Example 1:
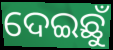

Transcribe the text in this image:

ଦେଇଛୁଁ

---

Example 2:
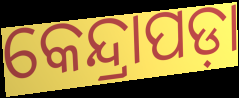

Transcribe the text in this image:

କେନ୍ଦ୍ରାପଡ଼ା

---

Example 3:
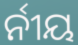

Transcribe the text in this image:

ର୍ନୀୟ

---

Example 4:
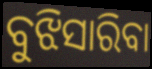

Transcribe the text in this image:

ବୁଝିସାରିବା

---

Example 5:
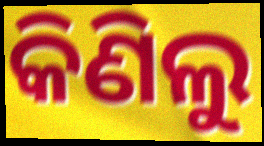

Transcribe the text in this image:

କିଣିଲୁ